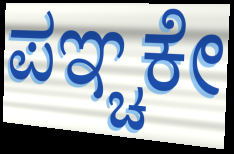
ಪಞ್ಚಕೇ